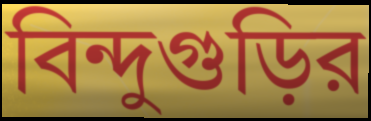
বিন্দুগুড়ির